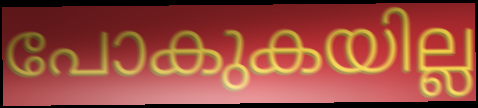
പോകുകയില്ല